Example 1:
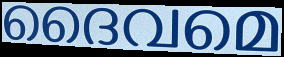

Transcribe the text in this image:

ദൈവമെ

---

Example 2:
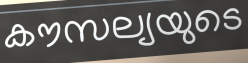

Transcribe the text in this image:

കൗസല്യയുടെ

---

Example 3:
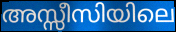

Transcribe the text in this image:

അസ്സീസിയിലെ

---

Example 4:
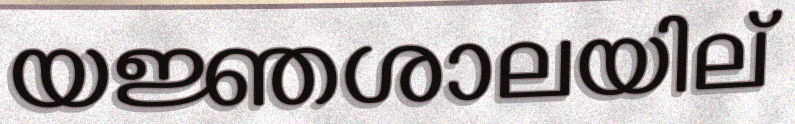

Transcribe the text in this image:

യജ്ഞശാലയില്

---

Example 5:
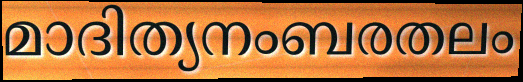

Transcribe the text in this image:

മാദിത്യനംബരതലം